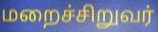
மறைச்சிறுவர்